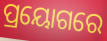
ପ୍ରୟୋଗରେ